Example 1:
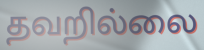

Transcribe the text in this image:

தவறில்லை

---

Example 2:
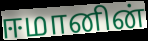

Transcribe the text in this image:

ஈமானின்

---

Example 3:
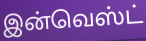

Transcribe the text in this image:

இன்வெஸ்ட்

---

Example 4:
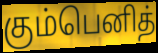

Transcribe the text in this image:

கும்பெனித்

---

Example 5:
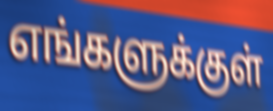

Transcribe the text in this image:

எங்களுக்குள்